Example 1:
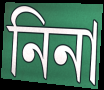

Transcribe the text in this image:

নিনা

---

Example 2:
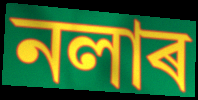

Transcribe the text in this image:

নলাৰ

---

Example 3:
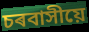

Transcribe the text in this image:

চৰবাসীয়ে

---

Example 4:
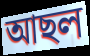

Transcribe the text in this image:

আছল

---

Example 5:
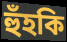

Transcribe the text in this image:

হুঁহকি